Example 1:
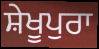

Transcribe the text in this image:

ਸ਼ੇਖੂਪੁਰਾ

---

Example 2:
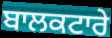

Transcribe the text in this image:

ਬਾਲਕਟਾਰੇ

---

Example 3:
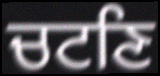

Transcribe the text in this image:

ਚਟਣਿ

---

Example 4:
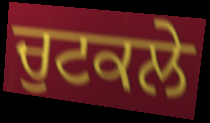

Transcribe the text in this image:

ਚੁਟਕਲੇ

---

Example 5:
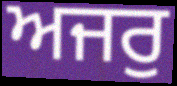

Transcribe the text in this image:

ਅਜਰੁ